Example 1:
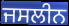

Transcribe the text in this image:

ਜਸਲੀਨ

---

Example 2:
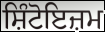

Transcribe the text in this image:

ਸ਼ਿੰਟੋਇਜ਼ਮ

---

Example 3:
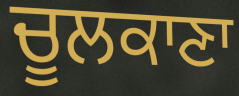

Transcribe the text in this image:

ਚੂਲਕਾਣਾ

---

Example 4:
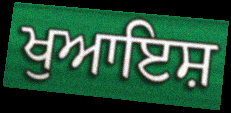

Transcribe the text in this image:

ਖੁਆਇਸ਼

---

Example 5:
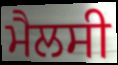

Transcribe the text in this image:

ਮੈਲਸੀ